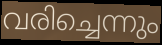
വരിച്ചെന്നും